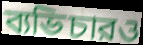
ব্যভিচারও